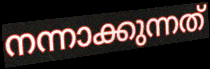
നന്നാക്കുന്നത്